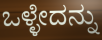
ಒಳ್ಳೇದನ್ನು